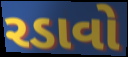
રડાવો